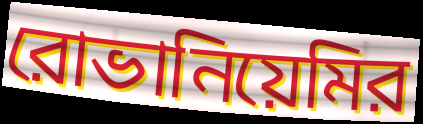
রোভানিয়েমির